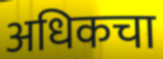
अधिकचा